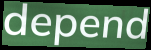
depend